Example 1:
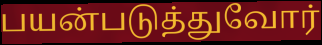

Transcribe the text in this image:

பயன்படுத்துவோர்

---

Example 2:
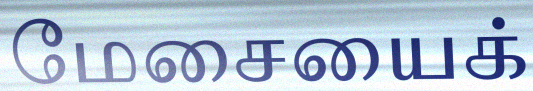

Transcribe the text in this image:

மேசையைக்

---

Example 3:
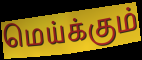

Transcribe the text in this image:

மெய்க்கும்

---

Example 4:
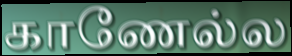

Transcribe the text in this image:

காணேல்ல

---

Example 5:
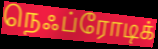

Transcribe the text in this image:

நெஃப்ரோடிக்